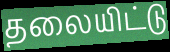
தலையிட்டு